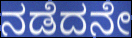
ನಡೆದನೇ